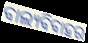
ବାଲ୍ୟବିବାହର